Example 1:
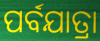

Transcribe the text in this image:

ପର୍ବଯାତ୍ରା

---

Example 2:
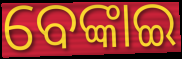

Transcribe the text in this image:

ବେଙ୍କାଇ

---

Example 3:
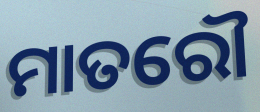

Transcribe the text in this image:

ମାତରୌ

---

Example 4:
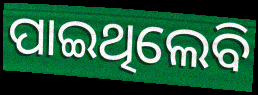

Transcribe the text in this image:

ପାଇଥିଲେବି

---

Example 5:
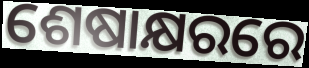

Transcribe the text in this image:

ଶେଷାକ୍ଷରରେ